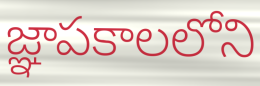
జ్ఞాపకాలలోని